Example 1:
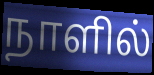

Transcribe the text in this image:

நாளில்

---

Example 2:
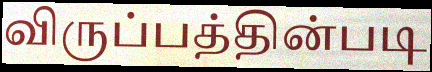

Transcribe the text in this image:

விருப்பத்தின்படி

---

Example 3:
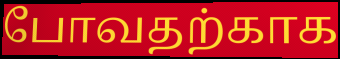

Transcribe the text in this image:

போவதற்காக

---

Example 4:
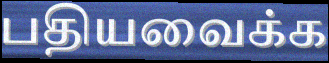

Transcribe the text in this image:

பதியவைக்க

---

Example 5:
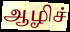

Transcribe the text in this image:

ஆழிச்